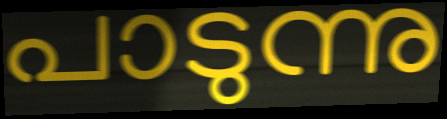
പാടുന്നു